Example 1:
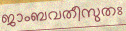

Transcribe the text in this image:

ജാംബവതീസുതഃ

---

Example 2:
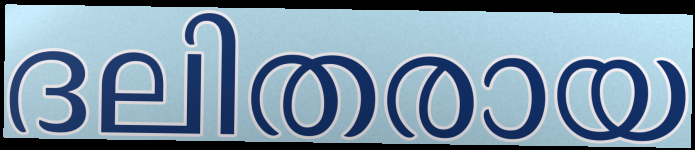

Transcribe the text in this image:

ദലിതരായ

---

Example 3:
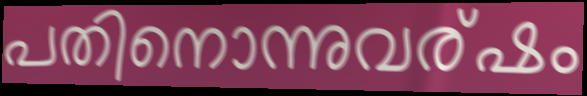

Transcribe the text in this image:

പതിനൊന്നുവര്ഷം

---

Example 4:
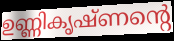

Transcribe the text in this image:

ഉണ്ണികൃഷ്ണന്റെ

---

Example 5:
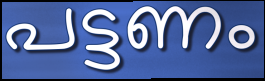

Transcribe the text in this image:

പട്ടണം